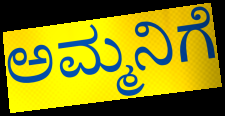
ಅಮ್ಮನಿಗೆ